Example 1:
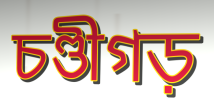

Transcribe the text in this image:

চণ্ডীগড়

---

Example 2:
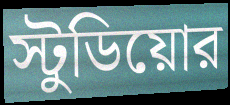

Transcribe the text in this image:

স্টুডিয়োর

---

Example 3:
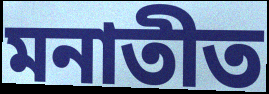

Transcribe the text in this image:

মনাতীত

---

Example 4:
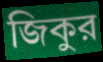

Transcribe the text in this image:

জিকুর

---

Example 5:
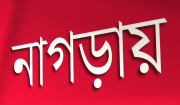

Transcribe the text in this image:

নাগড়ায়